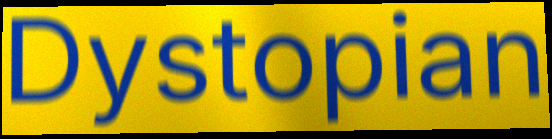
Dystopian